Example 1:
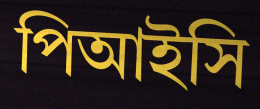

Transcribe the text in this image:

পিআইসি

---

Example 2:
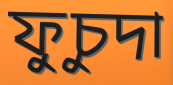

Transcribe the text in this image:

ফুচুদা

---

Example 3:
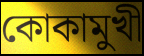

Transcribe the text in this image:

কোকামুখী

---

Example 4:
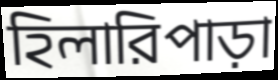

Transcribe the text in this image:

হিলারিপাড়া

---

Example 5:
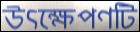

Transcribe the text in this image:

উৎক্ষেপণটি